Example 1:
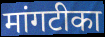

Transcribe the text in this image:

मांगटीका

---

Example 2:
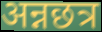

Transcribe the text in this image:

अन्नछत्र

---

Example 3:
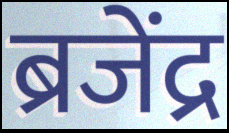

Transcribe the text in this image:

ब्रजेंद्र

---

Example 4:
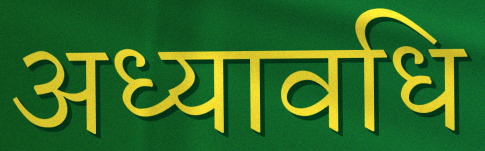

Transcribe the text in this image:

अध्यावधि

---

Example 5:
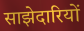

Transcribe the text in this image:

साझेदारियों